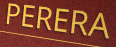
PERERA